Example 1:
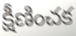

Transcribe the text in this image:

క్షీణించక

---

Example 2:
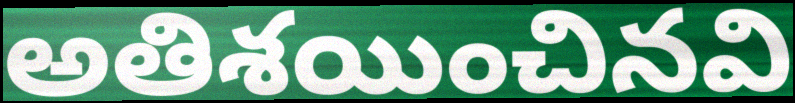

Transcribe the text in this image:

అతిశయించినవి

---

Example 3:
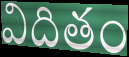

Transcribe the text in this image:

విదితం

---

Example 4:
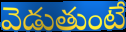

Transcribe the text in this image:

వెడుతుంటే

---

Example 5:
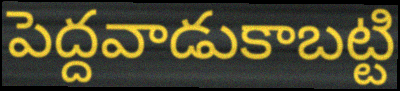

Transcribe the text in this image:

పెద్దవాడుకాబట్టి